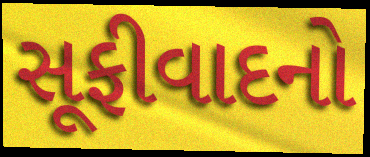
સૂફીવાદનો